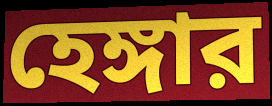
হেঙ্গার